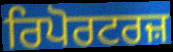
ਰਿਪੋਰਟਰਜ਼